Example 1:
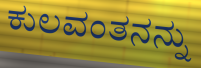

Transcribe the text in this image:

ಕುಲವಂತನನ್ನು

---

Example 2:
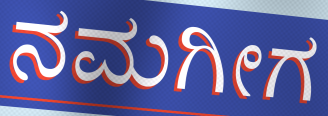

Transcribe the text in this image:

ನಮಗೀಗ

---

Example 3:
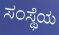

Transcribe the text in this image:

ಸಂಸ್ಥೆಯ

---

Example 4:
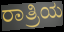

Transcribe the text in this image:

ರಾತ್ರಿಯ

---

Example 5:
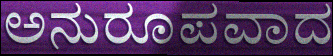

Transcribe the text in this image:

ಅನುರೂಪವಾದ